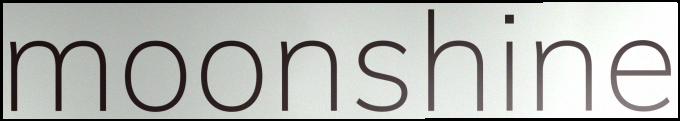
moonshine